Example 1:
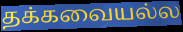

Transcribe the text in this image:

தக்கவையல்ல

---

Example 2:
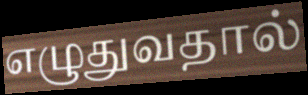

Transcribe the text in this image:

எழுதுவதால்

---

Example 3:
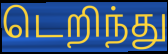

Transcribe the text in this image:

டெறிந்து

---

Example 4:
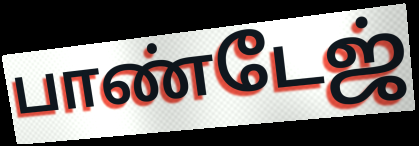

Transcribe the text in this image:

பாண்டேஜ்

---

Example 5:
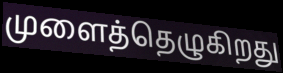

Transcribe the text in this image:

முளைத்தெழுகிறது